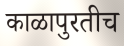
काळापुरतीच